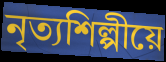
নৃত্যশিল্পীয়ে